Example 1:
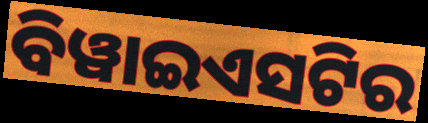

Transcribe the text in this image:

ବିୱାଇଏସଟିର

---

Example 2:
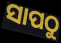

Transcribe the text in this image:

ସାପଠୁ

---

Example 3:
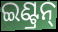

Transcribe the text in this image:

ଇଣ୍ଟ୍ରନ୍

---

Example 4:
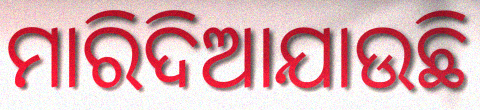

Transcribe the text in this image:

ମାରିଦିଆଯାଉଛି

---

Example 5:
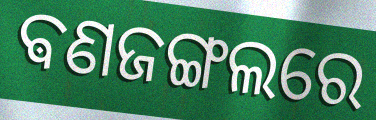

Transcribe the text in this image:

ଵଣଜଙ୍ଗଲରେ